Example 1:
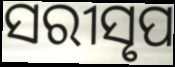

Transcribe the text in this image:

ସରୀସୃପ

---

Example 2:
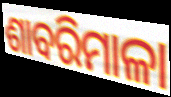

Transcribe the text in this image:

ଶାବରିମାଳା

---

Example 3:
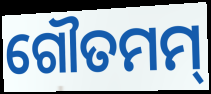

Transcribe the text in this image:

ଗୌତମମ୍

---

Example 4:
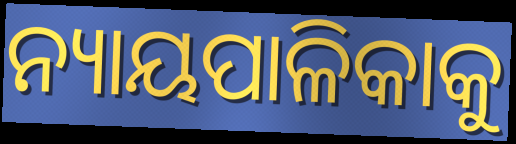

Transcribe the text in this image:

ନ୍ୟାୟପାଳିକାକୁ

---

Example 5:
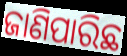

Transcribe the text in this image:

ଜାଣିପାରିଛ